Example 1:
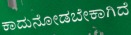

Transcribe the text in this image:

ಕಾದುನೋಡಬೇಕಾಗಿದೆ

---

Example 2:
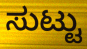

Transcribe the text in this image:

ಸುಟ್ಟು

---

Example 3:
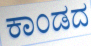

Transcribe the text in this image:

ಕಾಂಡದ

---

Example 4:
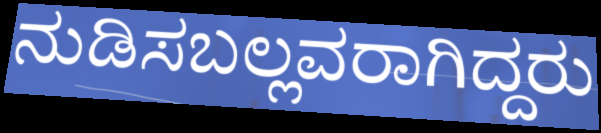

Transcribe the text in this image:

ನುಡಿಸಬಲ್ಲವರಾಗಿದ್ದರು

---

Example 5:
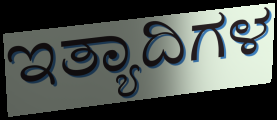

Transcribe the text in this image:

ಇತ್ಯಾದಿಗಳ